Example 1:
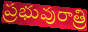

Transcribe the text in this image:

ప్రభువురాత్రి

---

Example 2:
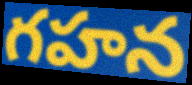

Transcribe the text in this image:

గహన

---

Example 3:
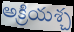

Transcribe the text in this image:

అక్రియశ్చ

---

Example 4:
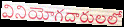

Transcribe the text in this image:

వినియోగదారులలో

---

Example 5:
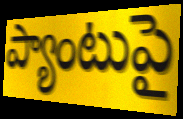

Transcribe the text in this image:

ప్యాంటుపై